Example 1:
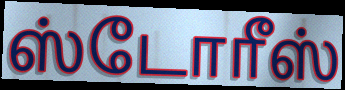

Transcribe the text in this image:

ஸ்டோரீஸ்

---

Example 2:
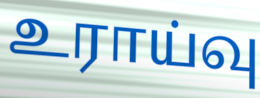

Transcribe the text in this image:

உராய்வு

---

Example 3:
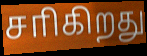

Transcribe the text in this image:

சரிகிறது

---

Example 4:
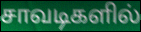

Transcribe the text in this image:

சாவடிகளில்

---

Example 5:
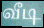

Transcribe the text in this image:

வீடி